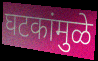
घटकांमुळे